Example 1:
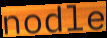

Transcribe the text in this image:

nodle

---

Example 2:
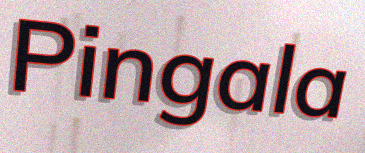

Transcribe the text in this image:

Pingala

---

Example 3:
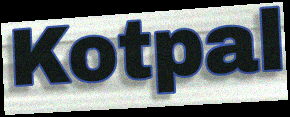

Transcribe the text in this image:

Kotpal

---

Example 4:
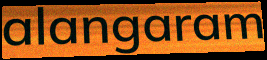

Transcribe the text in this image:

alangaram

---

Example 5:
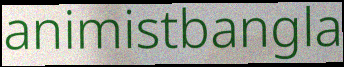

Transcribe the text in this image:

animistbangla